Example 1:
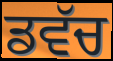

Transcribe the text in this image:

ਡਵੱਚ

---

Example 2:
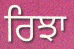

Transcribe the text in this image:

ਰਿਝਾ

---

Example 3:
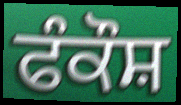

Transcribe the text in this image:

ਫੰਕੌਸ਼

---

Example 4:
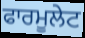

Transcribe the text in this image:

ਫਾਰਮੂਲੇਟ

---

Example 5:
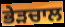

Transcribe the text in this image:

ਭੇੜਚਾਲ